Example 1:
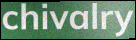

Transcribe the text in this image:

chivalry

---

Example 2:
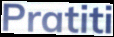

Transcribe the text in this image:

Pratiti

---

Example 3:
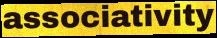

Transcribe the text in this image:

associativity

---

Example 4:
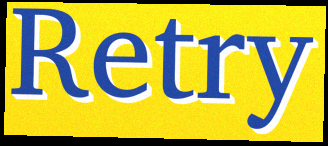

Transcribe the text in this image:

Retry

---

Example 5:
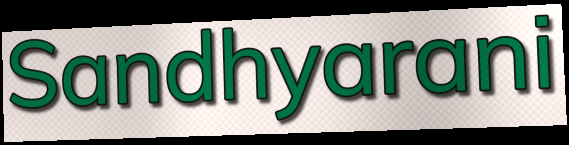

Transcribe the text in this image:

Sandhyarani